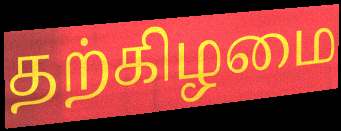
தற்கிழமை